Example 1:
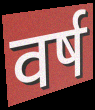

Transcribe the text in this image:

वर्ष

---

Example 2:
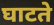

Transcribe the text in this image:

घाटते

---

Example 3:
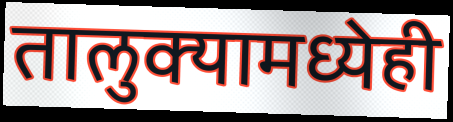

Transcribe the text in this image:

तालुक्यामध्येही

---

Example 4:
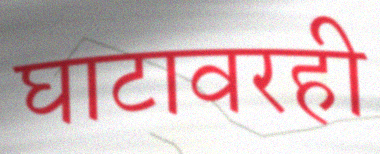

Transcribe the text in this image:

घाटावरही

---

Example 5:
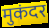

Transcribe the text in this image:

मुकंदर